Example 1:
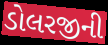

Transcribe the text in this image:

ડોલરજીની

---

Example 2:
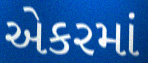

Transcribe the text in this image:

એકરમાં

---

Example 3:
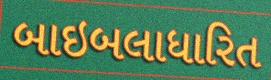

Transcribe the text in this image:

બાઇબલાધારિત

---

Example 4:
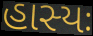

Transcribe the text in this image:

હાસ્યઃ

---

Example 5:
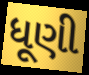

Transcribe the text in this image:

ધૂણી